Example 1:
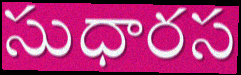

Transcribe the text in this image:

సుధారస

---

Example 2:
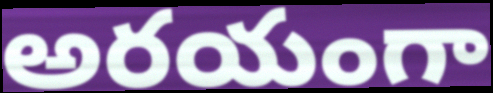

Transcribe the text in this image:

అరయంగా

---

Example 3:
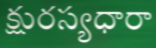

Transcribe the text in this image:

క్షురస్యధారా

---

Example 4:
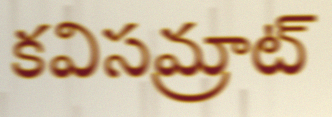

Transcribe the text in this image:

కవిసమ్రాట్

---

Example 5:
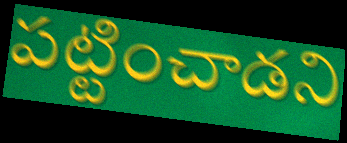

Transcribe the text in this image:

పట్టించాడని